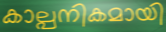
കാല്പനികമായി